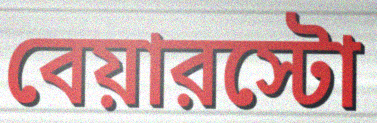
বেয়ারস্টো